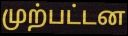
முற்பட்டன